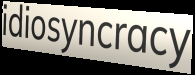
idiosyncracy